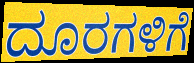
ದೂರಗಳಿಗೆ